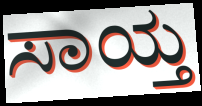
ಸಾಯ್ತ